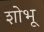
शोभू